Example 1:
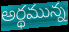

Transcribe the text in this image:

అర్థమున్న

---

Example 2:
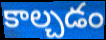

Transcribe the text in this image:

కాల్చడం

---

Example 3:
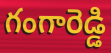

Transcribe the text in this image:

గంగారెడ్డి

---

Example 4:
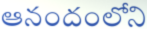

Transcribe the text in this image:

ఆనందంలోని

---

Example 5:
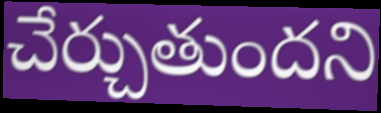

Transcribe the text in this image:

చేర్చుతుందని